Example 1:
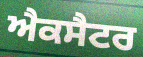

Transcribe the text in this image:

ਐਕਸੈਟਰ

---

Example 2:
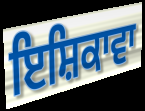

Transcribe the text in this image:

ਇਸ਼ਿਕਾਵਾ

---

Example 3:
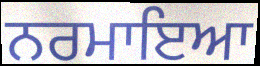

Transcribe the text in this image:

ਨਰਮਾਇਆ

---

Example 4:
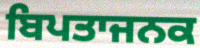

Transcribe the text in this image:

ਬਿਪਤਾਜਨਕ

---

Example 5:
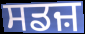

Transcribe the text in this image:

ਸਡਜ਼